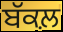
ਬੱਕਲ਼